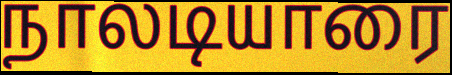
நாலடியாரை